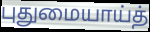
புதுமையாய்த்